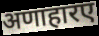
अणाहारए